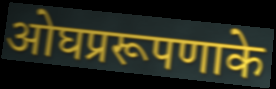
ओघप्ररूपणाके